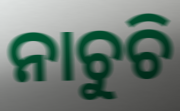
ନାଚୁଚି